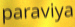
paraviya